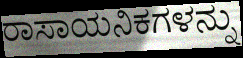
ರಾಸಾಯನಿಕಗಳನ್ನು